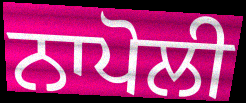
ਨਾਪੋਲੀ